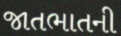
જાતભાતની